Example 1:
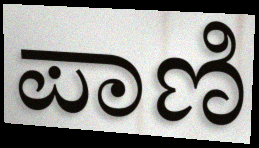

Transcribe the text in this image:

ಪಾಣಿ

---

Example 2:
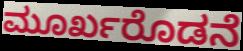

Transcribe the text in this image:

ಮೂರ್ಖರೊಡನೆ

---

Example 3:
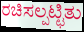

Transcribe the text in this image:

ರಚಿಸಲ್ಪಟ್ಟಿತು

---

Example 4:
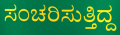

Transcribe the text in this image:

ಸಂಚರಿಸುತ್ತಿದ್ದ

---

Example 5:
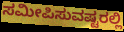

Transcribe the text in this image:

ಸಮೀಪಿಸುವಷ್ಟರಲ್ಲಿ